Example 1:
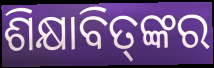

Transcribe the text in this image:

ଶିକ୍ଷାବିତ୍‌ଙ୍କର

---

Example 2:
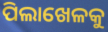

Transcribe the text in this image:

ପିଲାଖେଳକୁ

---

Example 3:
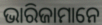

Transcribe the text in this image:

ଭାରିଜାମାନେ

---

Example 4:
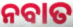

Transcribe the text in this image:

ନବାତ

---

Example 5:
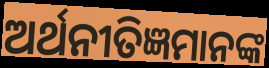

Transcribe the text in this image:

ଅର୍ଥନୀତିଜ୍ଞମାନଙ୍କ